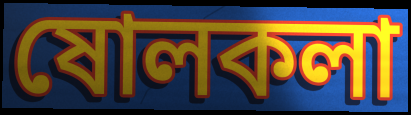
ষোলকলা